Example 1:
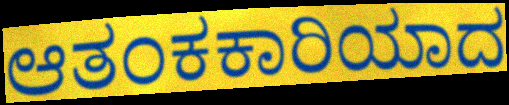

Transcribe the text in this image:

ಆತಂಕಕಾರಿಯಾದ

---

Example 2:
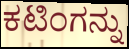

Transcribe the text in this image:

ಕಟಿಂಗನ್ನು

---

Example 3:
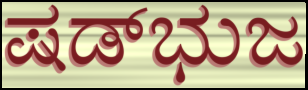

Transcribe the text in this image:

ಷಡ್‌ಭುಜ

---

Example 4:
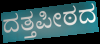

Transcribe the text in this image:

ದತ್ತಪೀಠದ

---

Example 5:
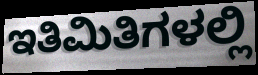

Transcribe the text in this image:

ಇತಿಮಿತಿಗಳಲ್ಲಿ